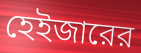
হেইজারের